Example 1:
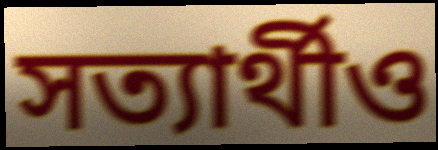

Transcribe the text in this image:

সত্যার্থীও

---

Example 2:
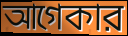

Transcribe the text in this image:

আগেকার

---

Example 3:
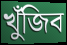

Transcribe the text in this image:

খুঁজিব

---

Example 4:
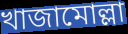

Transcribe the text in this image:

খাজামোল্লা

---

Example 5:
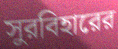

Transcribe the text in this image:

সুরবিহারের